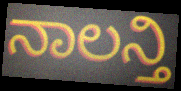
ನಾಲನ್ತಿ